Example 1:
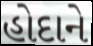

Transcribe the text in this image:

હોદાને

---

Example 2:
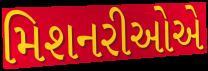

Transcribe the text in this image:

મિશનરીઓએ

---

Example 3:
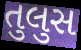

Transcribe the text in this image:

તુલુસ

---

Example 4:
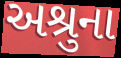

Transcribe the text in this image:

અશ્રુના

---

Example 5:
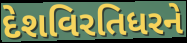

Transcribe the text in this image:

દેશવિરતિધરને